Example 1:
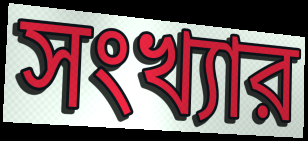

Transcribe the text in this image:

সংখ্যার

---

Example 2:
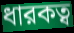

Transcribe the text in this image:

ধারকত্ব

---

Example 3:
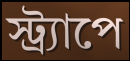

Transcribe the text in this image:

স্ট্র্যাপে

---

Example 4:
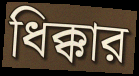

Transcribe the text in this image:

ধিক্কার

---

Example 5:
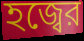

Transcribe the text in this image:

হজ্বের